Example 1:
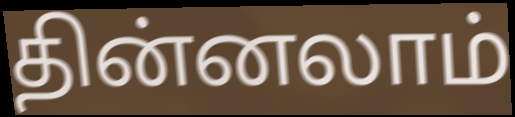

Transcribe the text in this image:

தின்னலாம்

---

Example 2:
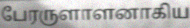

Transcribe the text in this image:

பேரருளாளனாகிய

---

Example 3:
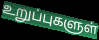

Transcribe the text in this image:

உறுப்புகளுள்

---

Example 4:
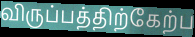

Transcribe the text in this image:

விருப்பத்திற்கேற்ப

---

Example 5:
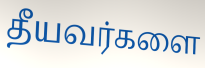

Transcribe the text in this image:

தீயவர்களை